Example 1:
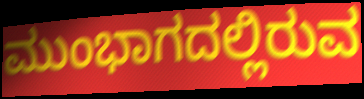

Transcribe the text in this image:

ಮುಂಭಾಗದಲ್ಲಿರುವ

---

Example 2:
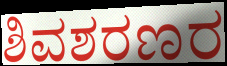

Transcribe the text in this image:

ಶಿವಶರಣರ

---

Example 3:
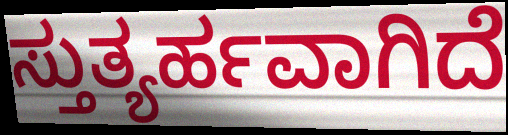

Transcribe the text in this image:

ಸ್ತುತ್ಯರ್ಹವಾಗಿದೆ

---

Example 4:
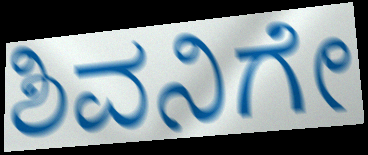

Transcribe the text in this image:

ಶಿವನಿಗೇ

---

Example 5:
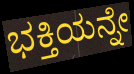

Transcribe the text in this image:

ಭಕ್ತಿಯನ್ನೇ